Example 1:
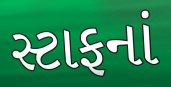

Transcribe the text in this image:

સ્ટાફનાં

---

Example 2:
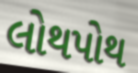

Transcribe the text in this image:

લોથપોથ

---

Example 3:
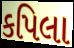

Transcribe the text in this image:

કપિલા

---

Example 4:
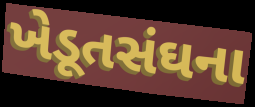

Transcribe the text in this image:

ખેડૂતસંઘના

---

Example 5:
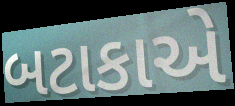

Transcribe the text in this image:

બટાકાએ